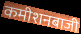
कमीशनबाजी